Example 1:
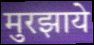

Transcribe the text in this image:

मुरझाये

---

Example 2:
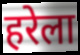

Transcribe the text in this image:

हरेला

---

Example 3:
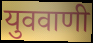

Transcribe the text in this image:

युववाणी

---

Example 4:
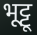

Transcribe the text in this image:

भूट्टू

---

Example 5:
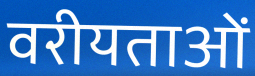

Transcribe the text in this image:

वरीयताओं